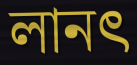
লানৎ